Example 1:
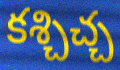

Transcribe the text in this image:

కశ్చిచ్చ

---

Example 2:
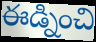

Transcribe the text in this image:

ఈడ్నించి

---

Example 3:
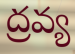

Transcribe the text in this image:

ద్రవ్య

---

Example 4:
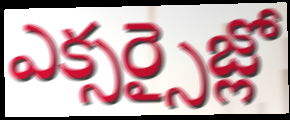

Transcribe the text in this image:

ఎక్సర్సైజ్లో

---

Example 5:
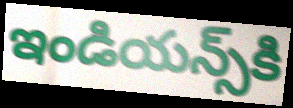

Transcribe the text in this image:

ఇండియన్స్‌కి